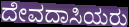
ದೇವದಾಸಿಯರು